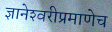
ज्ञानेश्वरीप्रमाणेच